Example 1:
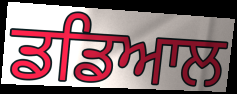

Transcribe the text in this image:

ਡਡਿਆਲ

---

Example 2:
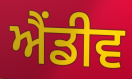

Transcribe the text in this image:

ਐਂਡੀਵ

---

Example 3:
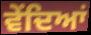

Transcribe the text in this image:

ਵੇਂਦਿਆਂ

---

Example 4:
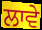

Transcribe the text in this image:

ਲਾਵੇ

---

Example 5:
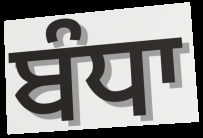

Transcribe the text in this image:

ਬੰਧਾ